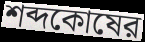
শব্দকোষের